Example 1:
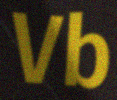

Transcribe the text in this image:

Vb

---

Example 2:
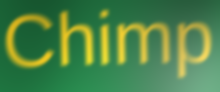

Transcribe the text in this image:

Chimp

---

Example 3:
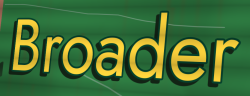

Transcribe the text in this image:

Broader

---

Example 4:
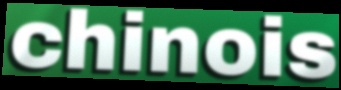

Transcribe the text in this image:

chinois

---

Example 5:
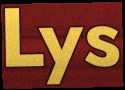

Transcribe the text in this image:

Lys